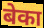
बेका